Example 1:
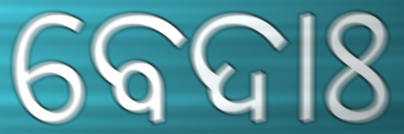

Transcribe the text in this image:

ବେଦାଃ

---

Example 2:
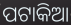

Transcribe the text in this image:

ପଟାକିଆ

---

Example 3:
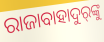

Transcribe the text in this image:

ରାଜାବାହାଦୁର୍‍ଙ୍କୁ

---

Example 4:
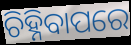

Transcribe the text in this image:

ଚିହ୍ନିବାପରେ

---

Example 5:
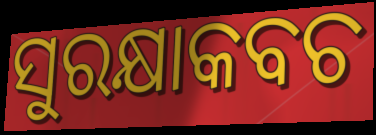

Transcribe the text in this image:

ସୁରକ୍ଷାକବଚ